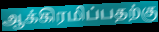
ஆக்கிரமிப்பதற்கு